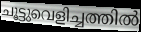
ചൂട്ടുവെളിച്ചത്തിൽ